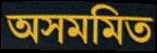
অসমমিত